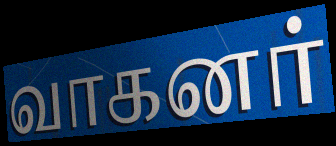
வாகனர்